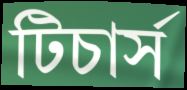
টিচার্স